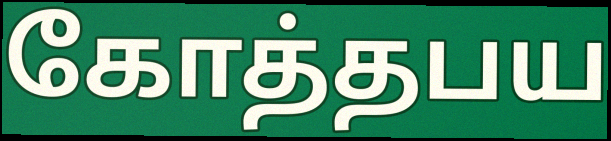
கோத்தபய